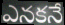
ఎనకనే